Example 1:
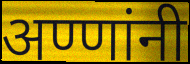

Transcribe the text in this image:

अण्णांनी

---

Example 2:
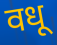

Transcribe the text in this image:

वधू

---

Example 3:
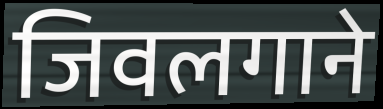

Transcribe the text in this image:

जिवलगाने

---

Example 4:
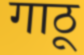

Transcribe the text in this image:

गाठू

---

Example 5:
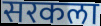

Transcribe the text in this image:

सरकला